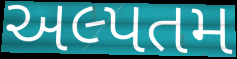
અલ્પતમ